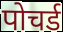
पोचर्ड